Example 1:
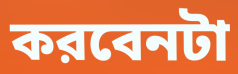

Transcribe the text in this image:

করবেনটা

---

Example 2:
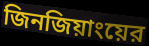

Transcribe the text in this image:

জিনজিয়াংয়ের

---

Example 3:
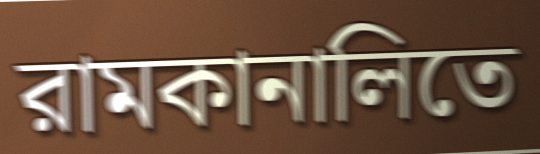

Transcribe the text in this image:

রামকানালিতে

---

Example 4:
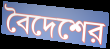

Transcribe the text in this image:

বৈদেশের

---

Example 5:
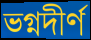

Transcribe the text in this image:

ভগ্নদীর্ণ